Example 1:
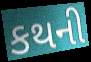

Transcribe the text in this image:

કથની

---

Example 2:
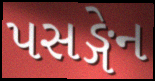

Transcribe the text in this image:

પસઙ્ગેન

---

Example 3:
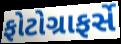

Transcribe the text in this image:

ફોટોગ્રાફર્સે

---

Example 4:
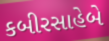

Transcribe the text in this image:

કબીરસાહેબે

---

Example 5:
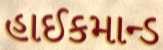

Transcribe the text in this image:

હાઈકમાન્ડ